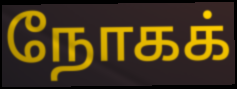
நோகக்